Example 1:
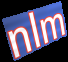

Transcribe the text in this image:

nlm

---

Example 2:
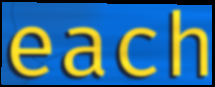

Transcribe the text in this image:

each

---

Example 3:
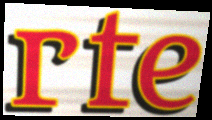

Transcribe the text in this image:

rte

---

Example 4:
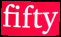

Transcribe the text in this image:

fifty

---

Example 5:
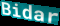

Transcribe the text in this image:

Bidar